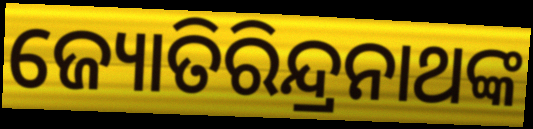
ଜ୍ୟୋତିରିନ୍ଦ୍ରନାଥଙ୍କ